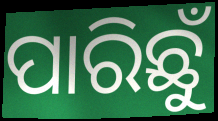
ପାରିଛୁଁ